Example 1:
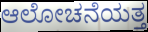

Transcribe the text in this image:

ಆಲೋಚನೆಯತ್ತ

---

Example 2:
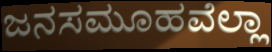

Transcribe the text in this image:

ಜನಸಮೂಹವೆಲ್ಲಾ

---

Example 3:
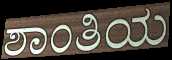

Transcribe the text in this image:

ಶಾಂತಿಯ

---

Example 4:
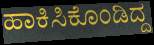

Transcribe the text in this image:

ಹಾಕಿಸಿಕೊಂಡಿದ್ದ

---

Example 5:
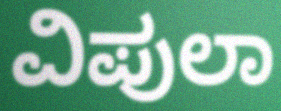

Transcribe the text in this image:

ವಿಪುಲಾ